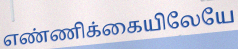
எண்ணிக்கையிலேயே